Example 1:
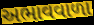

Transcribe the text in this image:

અભાવવાળા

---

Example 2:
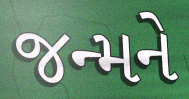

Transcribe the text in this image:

જન્મને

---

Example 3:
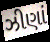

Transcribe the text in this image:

ઝીણાં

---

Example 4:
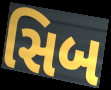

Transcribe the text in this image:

સિબ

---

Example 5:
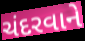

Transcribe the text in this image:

ચંદરવાને